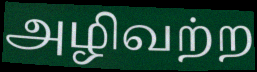
அழிவற்ற